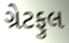
ગ્રેટફુલ